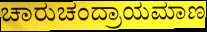
ಚಾರುಚಂದ್ರಾಯಮಾಣ